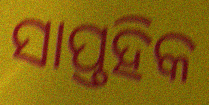
ସାପ୍ତହିକ